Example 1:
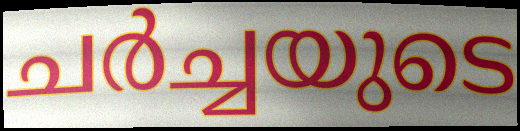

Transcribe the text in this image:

ചർച്ചയുടെ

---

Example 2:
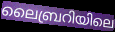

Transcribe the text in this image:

ലൈബ്രറിയിലെ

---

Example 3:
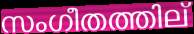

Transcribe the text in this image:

സംഗീതത്തില്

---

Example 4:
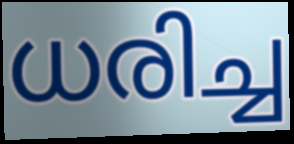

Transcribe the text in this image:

ധരിച്ച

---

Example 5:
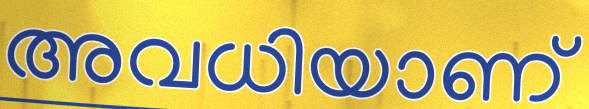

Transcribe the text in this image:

അവധിയാണ്